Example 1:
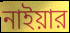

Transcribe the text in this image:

নাইয়ার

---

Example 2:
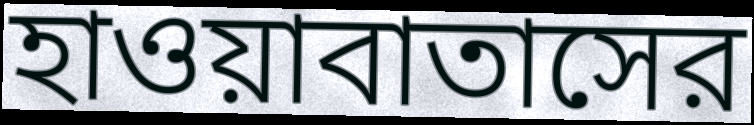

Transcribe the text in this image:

হাওয়াবাতাসের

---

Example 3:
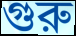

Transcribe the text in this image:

গুরু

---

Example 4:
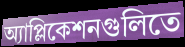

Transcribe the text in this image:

অ্যাপ্লিকেশনগুলিতে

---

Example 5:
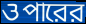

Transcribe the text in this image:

ওপারের